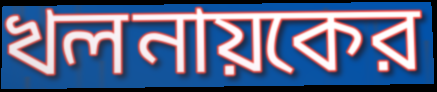
খলনায়কের